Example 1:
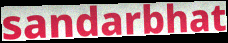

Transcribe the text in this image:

sandarbhat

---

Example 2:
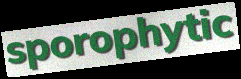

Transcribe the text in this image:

sporophytic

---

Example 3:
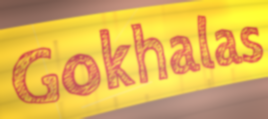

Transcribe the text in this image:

Gokhalas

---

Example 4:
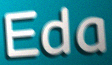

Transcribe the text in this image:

Eda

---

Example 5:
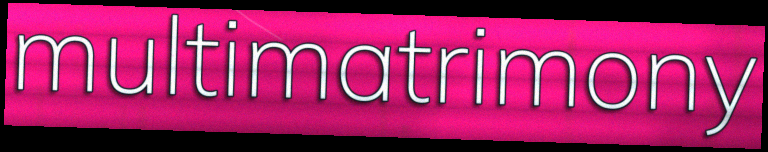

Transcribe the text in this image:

multimatrimony